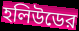
হলিউডের